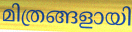
മിത്രങ്ങളായി